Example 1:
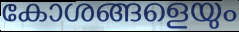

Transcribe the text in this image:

കോശങ്ങളെയും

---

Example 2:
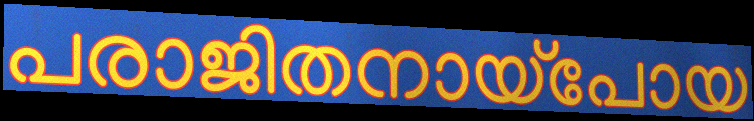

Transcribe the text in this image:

പരാജിതനായ്പോയ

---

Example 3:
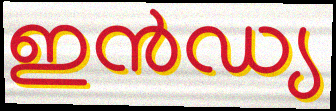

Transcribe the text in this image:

ഇൻഡ്യ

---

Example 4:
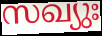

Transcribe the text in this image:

സഖ്യുഃ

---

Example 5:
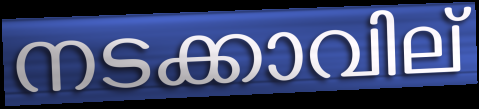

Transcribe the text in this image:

നടക്കാവില്